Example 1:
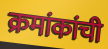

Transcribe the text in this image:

क्रमांकांची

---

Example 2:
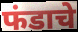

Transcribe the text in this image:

फंडाचे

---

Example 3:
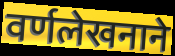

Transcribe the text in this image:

वर्णलेखनाने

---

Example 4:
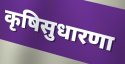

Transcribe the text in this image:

कृषिसुधारणा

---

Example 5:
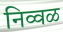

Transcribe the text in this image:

निव्‍वळ